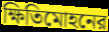
ক্ষিতিমোহনের